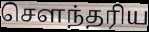
சௌந்தரிய